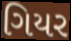
ગિયર